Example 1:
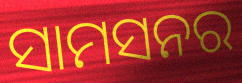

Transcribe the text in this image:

ସାମସନର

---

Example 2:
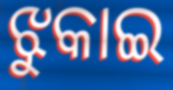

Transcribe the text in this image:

ଝୁକାଇ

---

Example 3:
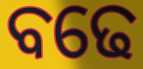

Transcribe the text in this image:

ବଢେ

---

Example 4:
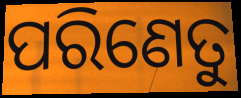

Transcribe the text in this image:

ପରିଣେତୁ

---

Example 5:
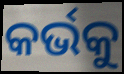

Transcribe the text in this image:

କର୍ଭକୁ